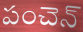
పంచెన్